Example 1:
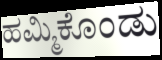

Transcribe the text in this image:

ಹಮ್ಮಿಕೊಂಡು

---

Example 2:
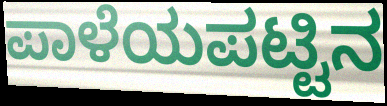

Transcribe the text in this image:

ಪಾಳೆಯಪಟ್ಟಿನ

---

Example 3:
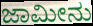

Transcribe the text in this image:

ಜಾಮೀನು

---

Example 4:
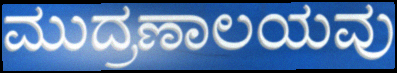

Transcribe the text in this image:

ಮುದ್ರಣಾಲಯವು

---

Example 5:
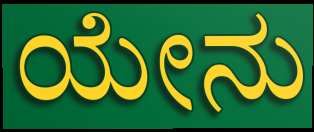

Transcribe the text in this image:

ಯೇನು